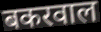
बकरवाल